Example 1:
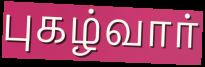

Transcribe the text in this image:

புகழ்வார்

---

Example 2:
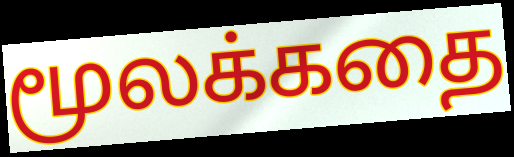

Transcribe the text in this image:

மூலக்கதை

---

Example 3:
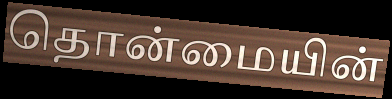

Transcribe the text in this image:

தொன்மையின்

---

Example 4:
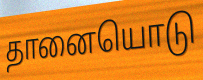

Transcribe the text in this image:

தானையொடு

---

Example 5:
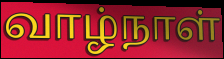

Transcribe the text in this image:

வாழ்நாள்